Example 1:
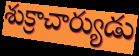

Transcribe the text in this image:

శుక్రాచార్యుడు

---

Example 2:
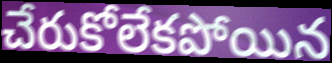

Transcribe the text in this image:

చేరుకోలేకపోయిన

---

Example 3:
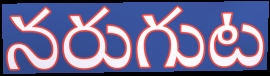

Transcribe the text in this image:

నరుగుట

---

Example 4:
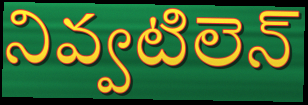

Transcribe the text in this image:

నివ్వటిలెన్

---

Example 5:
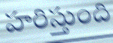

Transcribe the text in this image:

హరిస్తుంది